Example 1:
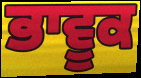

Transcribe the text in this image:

ਭਾਵੂਕ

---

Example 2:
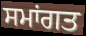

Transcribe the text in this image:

ਸਮਾਂਗਤ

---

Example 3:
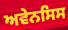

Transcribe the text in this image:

ਅਵੇਨਸਿਸ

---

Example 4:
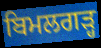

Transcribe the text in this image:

ਬਿਮਲਗੜ੍ਹ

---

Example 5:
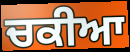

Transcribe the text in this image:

ਚਕੀਆ